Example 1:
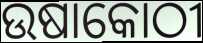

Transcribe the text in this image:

ଉଷାକୋଠୀ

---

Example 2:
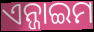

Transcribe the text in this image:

ଏନ୍ଜାଇମ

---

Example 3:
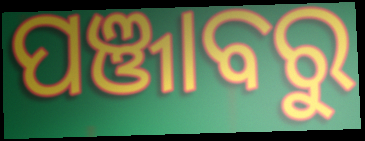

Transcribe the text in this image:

ପଞ୍ଜାବରୁ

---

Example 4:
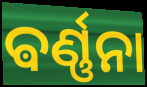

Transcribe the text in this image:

ଵର୍ଣ୍ଣନା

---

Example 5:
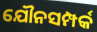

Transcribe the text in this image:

ଯୌନସମ୍ପର୍କ